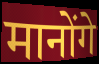
मानोंगे